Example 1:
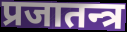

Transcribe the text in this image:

प्रजातन्त्र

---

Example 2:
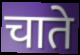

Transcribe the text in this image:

चाते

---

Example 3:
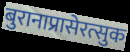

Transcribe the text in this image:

बुरानाप्रासेरत्सुक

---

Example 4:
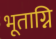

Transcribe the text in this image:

भूताग्नि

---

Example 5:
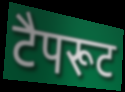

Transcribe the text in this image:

टैपरूट